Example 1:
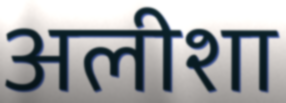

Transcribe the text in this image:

अलीशा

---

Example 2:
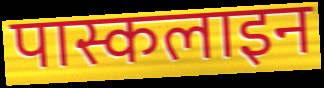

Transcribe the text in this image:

पास्कलाइन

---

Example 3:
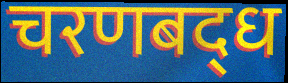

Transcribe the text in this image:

चरणबद्ध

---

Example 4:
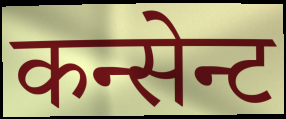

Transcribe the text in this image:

कन्सेन्ट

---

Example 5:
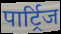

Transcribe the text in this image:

पार्ट्रिज